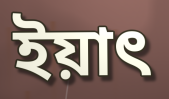
ইয়াৎ